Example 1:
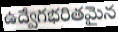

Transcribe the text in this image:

ఉద్వేగభరితమైన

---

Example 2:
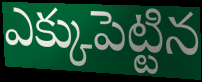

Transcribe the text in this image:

ఎక్కుపెట్టిన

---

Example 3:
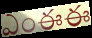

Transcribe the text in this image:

ఎంఈఈ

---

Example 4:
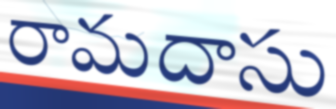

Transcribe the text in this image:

రామదాసు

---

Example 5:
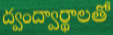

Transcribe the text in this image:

ద్వంద్వార్థాలతో